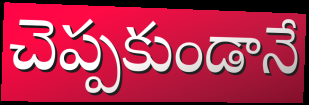
చెప్పకుండానే